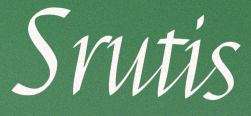
Srutis